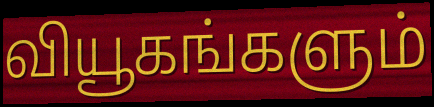
வியூகங்களும்